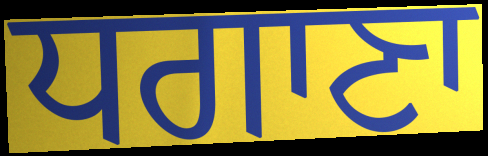
ਧਗਾਣਾ